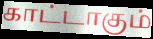
காட்டாகும்